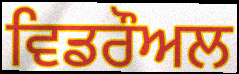
ਵਿਡਰੌਅਲ